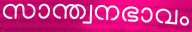
സാന്ത്വനഭാവം